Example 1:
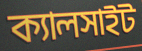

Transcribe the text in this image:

ক্যালসাইট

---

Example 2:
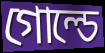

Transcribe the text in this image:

গোল্ডে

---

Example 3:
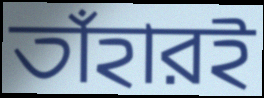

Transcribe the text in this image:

তাঁহারই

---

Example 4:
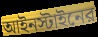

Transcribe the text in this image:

আইনস্টাইনের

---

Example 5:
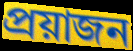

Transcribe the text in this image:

প্রয়াজন